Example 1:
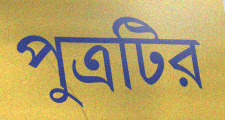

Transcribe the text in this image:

পুত্রটির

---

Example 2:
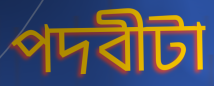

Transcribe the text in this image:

পদবীটা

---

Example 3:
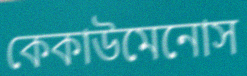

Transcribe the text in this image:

কেকাউমেনোস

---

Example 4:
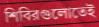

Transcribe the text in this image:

শিবিরগুলোতেই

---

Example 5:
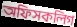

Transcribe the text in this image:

অফিসকলিগ